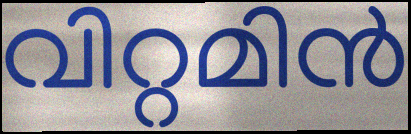
വിറ്റമിൻ